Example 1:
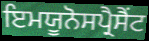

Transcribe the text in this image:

ਇਮਯੂਨੋਸਪ੍ਰੈਸੈਂਟ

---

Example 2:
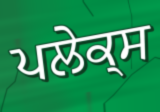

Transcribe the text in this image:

ਪਲੇਕ੍ਸ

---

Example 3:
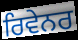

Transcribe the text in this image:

ਰਿਵੇਨਰ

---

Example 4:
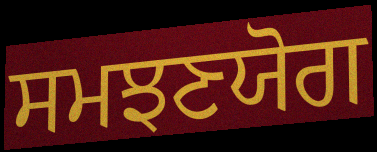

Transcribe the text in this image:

ਸਮਝਣਯੋਗ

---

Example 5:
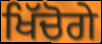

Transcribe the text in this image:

ਖਿੱਚੋਗੇ